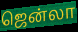
ஜென்லா